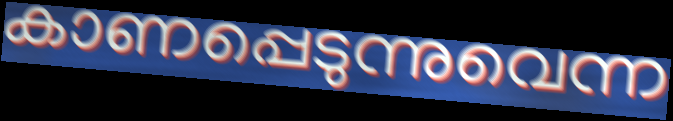
കാണപ്പെടുന്നുവെന്ന